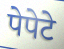
पेपेटे